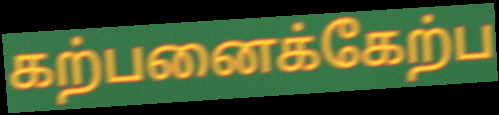
கற்பனைக்கேற்ப